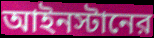
আইনস্টানের